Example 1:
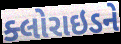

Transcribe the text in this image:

ક્લોરાઇડને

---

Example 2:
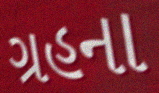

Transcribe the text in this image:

ગ્રહના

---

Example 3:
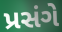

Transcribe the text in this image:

પ્રસંગે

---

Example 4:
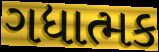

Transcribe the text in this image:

ગદ્યાત્મક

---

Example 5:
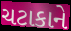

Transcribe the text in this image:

ચટાકાને